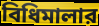
বিধিমালার